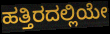
ಹತ್ತಿರದಲ್ಲಿಯೇ